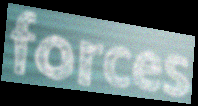
forces